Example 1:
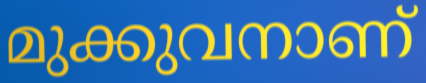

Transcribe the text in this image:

മുക്കുവനാണ്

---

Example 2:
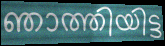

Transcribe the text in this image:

ഞാത്തിയിട്ട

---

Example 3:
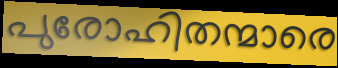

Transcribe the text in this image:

പുരോഹിതന്മാരെ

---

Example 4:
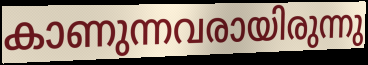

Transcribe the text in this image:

കാണുന്നവരായിരുന്നു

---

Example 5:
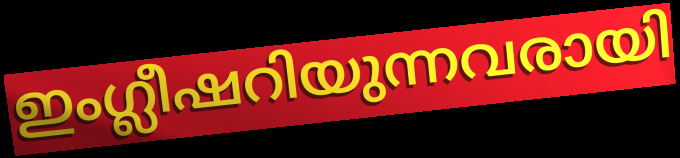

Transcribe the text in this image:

ഇംഗ്ലീഷറിയുന്നവരായി